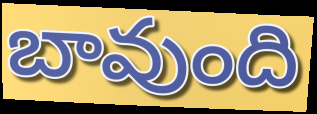
బావుంది